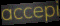
accepi